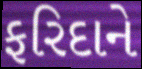
ફરિદાને